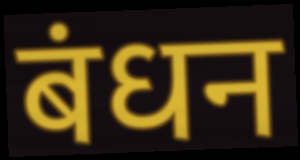
बंधन